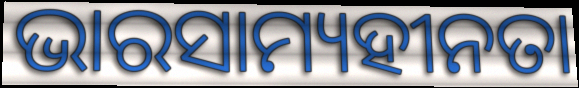
ଭାରସାମ୍ୟହୀନତା